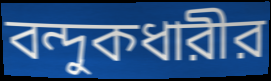
বন্দুকধারীর